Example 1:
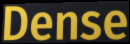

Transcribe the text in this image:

Dense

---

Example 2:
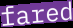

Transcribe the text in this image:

fared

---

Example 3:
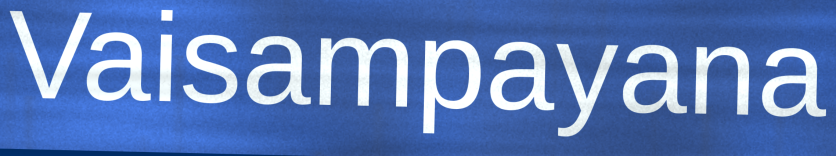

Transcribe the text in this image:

Vaisampayana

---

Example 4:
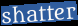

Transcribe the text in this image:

shatter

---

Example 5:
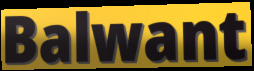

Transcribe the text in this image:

Balwant